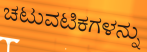
ಚಟುವಟಿಕಗಳನ್ನು